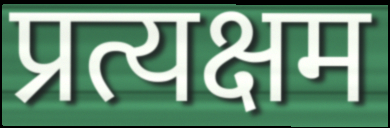
प्रत्यक्षम